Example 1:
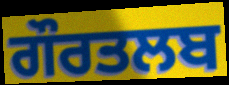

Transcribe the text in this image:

ਗੌਰਤਲਬ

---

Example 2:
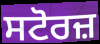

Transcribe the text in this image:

ਸਟੋਰਜ਼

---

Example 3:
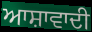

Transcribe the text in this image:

ਆਸ਼ਾਵਾਦੀ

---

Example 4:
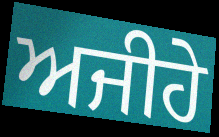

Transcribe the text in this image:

ਅਜੀਹੇ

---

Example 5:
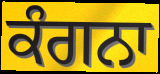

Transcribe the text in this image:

ਕੰਗਨਾ